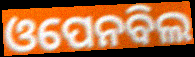
ଓପେନବିଲ